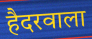
हैदरवाला